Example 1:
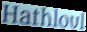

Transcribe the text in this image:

Hathloul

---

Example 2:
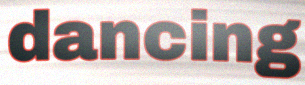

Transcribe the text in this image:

dancing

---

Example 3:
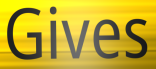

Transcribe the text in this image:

Gives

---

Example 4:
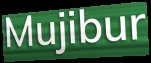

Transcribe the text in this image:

Mujibur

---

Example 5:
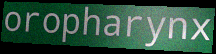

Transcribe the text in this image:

oropharynx